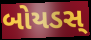
બોયડસ્